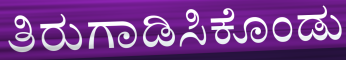
ತಿರುಗಾಡಿಸಿಕೊಂಡು